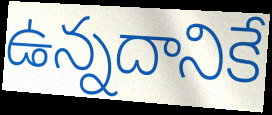
ఉన్నదానికే